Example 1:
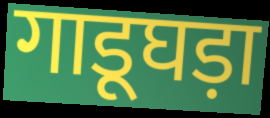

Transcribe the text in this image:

गाडूघड़ा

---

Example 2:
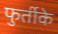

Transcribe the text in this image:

फुर्तीके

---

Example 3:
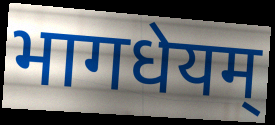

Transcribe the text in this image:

भागधेयम्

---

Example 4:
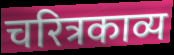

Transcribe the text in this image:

चरित्रकाव्य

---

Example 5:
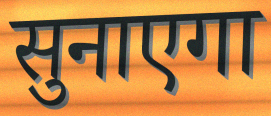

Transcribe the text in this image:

सुनाएगा